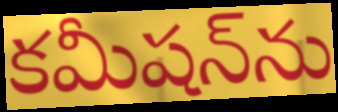
కమీషన్‌ను